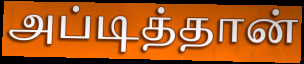
அப்டித்தான்